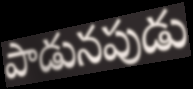
పాడునపుడు